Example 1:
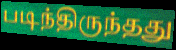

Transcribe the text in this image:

படிந்திருந்தது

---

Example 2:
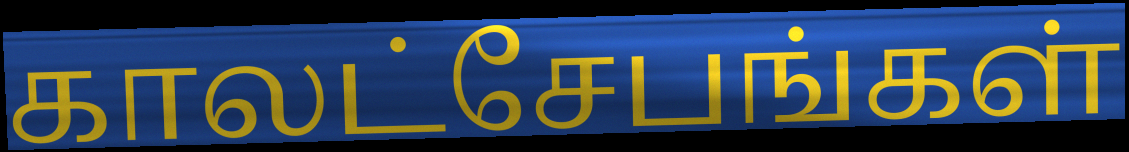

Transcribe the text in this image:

காலட்சேபங்கள்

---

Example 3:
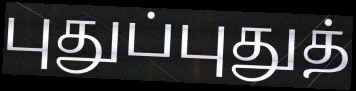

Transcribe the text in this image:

புதுப்புதுத்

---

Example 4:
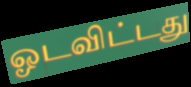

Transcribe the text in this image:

ஓடவிட்டது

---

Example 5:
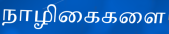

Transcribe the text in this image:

நாழிகைகளை